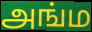
அங்ம